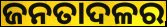
ଜନତାଦଳର